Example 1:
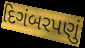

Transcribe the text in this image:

દિગંબરપણું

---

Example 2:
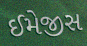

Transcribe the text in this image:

ઈમેજીસ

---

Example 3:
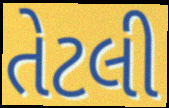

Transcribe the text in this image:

તેટલી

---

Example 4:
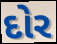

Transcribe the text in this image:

દોર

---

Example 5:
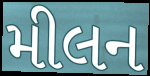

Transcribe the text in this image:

મીલન